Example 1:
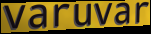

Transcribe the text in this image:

varuvar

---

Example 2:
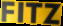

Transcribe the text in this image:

FITZ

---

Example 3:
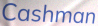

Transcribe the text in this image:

Cashman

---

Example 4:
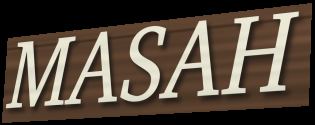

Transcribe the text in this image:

MASAH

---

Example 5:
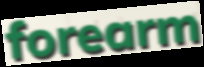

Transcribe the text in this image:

forearm